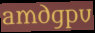
amdgpu